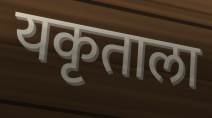
यकृताला